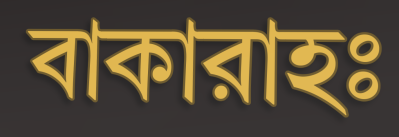
বাকারাহঃ